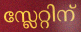
സ്ലേറ്റിന്